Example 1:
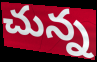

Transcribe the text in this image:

చున్న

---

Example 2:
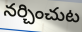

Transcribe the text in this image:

నర్చించుట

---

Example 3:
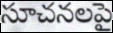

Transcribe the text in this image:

సూచనలపై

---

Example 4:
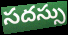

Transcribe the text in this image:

సదస్సు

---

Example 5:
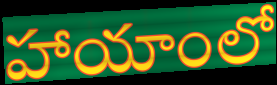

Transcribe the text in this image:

హాయాంలో